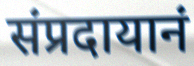
संप्रदायानं